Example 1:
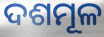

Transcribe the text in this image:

ଦଶମୂଳ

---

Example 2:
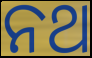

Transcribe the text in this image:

ନଥ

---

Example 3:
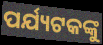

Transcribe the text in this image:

ପର୍ଯ୍ୟଟକଙ୍କୁ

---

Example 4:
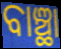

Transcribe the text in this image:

ବାଞ୍ଛା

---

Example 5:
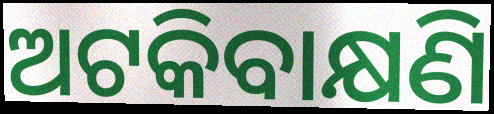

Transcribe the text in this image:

ଅଟକିବାକ୍ଷଣି